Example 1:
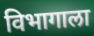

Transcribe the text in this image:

विभागाला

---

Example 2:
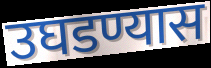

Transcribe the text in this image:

उघडण्यास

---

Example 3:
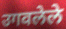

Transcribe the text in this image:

उगवलेले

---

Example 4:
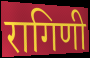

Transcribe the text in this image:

रागिणी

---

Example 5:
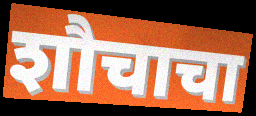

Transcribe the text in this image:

शौचाचा